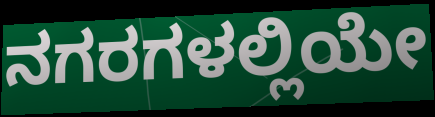
ನಗರಗಳಲ್ಲಿಯೇ